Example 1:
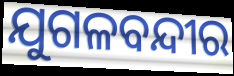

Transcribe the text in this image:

ଯୁଗଳବନ୍ଦୀର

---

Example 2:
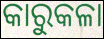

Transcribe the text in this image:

କାରୁକଳା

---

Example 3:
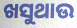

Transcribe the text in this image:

ଖସୁଥାଉ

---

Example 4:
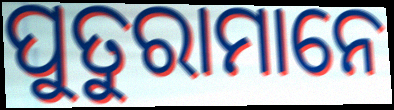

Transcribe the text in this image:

ପୁତୁରାମାନେ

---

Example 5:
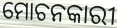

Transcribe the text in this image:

ମୋଚନକାରୀ